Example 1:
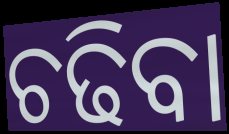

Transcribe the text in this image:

ଚଢିବା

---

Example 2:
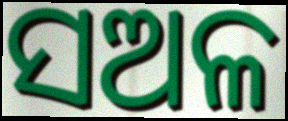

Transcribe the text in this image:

ସଅଳ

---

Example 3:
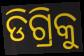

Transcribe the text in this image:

ଡିଗ୍ରିକୁ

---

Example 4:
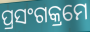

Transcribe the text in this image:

ପ୍ରସଂଗକ୍ରମେ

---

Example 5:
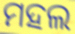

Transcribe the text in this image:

ମହଲ